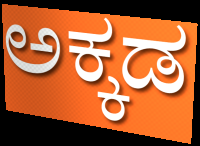
ಅಕ್ಕಡ